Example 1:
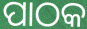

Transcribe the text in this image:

ପାଠକ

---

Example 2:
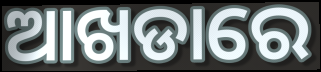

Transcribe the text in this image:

ଆଖଡାରେ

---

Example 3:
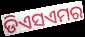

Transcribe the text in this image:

ଡିଏସଏମର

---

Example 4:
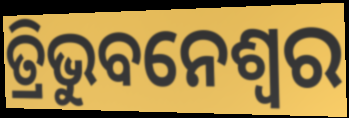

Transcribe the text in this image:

ତ୍ରିଭୁବନେଶ୍ବର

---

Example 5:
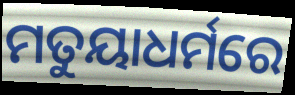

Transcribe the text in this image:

ମତୁୟାଧର୍ମରେ